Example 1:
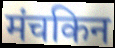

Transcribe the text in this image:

मंचकिन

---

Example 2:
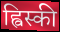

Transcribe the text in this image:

ह्विस्की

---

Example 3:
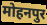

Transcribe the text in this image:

मोहनपुर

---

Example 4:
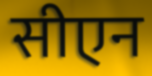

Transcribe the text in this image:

सीएन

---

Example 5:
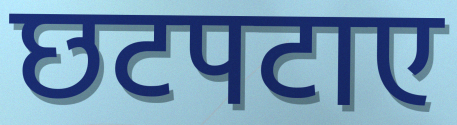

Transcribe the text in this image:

छटपटाए